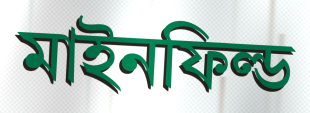
মাইনফিল্ড